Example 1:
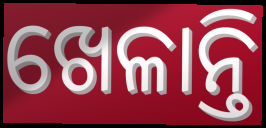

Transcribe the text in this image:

ଖେଳାନ୍ତି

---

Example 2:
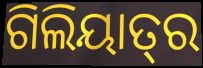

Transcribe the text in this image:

ଗିଲିୟାତ୍‍ର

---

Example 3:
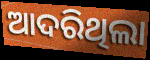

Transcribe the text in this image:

ଆଦରିଥିଲା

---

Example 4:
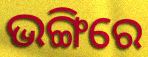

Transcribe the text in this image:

ଭଙ୍ଗିରେ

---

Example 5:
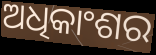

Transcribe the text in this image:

ଅଧିକାଂଶର